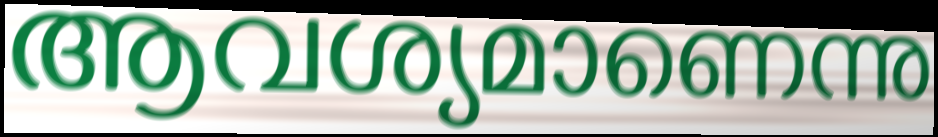
ആവശ്യമാണെന്നു